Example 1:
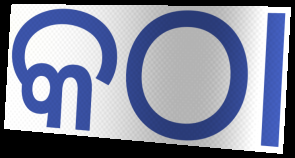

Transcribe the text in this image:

କଠା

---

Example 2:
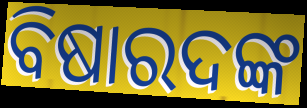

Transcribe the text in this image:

ବିଷାରଦଙ୍କ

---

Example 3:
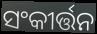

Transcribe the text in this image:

ସଂକୀର୍ତ୍ତନ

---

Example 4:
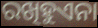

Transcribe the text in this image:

ରଖିହୁଏନା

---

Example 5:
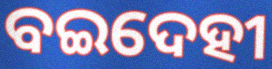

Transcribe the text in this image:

ବଇଦେହୀ